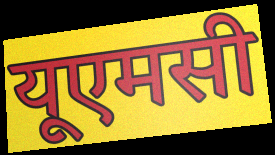
यूएमसी